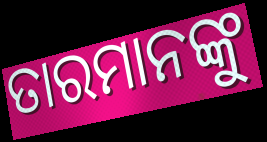
ତାରମାନଙ୍କୁ